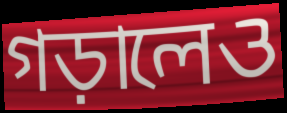
গড়ালেও